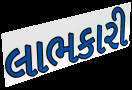
લાભકારી